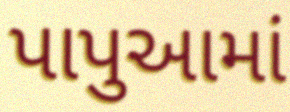
પાપુઆમાં